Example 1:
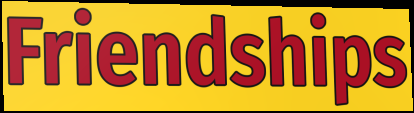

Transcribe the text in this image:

Friendships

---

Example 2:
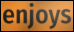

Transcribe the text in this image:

enjoys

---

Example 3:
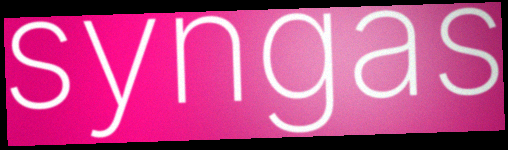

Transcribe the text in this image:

syngas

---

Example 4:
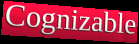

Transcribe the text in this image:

Cognizable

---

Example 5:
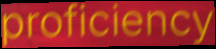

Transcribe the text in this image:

proficiency